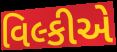
વિલ્કીએ